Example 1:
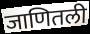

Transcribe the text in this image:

जाणितली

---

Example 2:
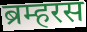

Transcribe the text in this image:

ब्रम्हरस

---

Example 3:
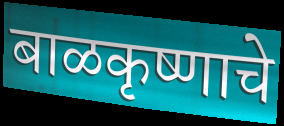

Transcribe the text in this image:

बाळकृष्णाचे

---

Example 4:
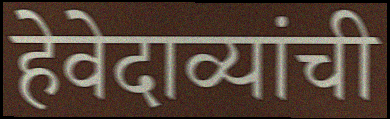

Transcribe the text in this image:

हेवेदाव्यांची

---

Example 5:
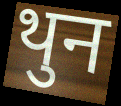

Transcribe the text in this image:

थुन